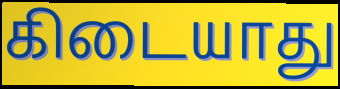
கிடையாது